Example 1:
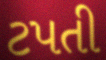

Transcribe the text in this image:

ટપતી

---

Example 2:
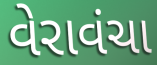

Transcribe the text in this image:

વેરાવંચા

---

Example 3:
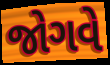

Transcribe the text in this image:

જોગવે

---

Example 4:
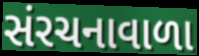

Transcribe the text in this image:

સંરચનાવાળા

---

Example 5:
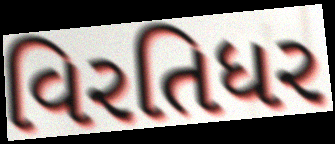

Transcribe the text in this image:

વિરતિધર